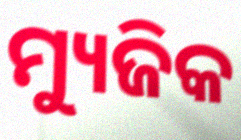
ମ୍ୟୁଜିକ